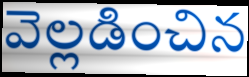
వెల్లడించిన